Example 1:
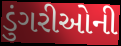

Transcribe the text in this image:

ડુંગરીઓની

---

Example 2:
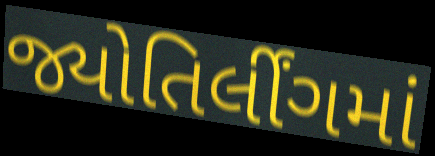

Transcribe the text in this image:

જ્યોતિર્લીંગમાં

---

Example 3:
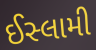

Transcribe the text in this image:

ઈસ્લામી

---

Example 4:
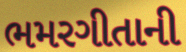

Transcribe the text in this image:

ભમરગીતાની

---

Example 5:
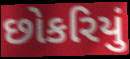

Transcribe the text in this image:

છોકરિયું